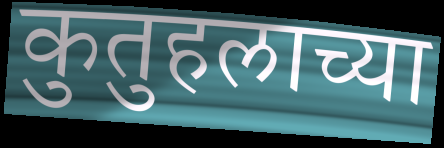
कुतुहलाच्या